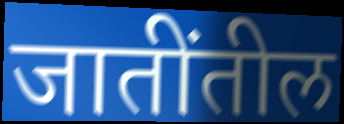
जातींतील